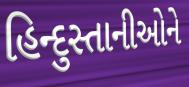
હિન્દુસ્તાનીઓને